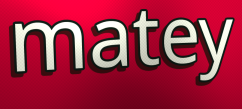
matey